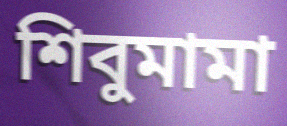
শিবুমামা